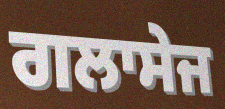
ਗਲਾਸੇਜ